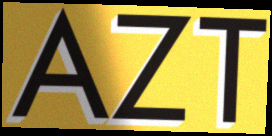
AZT